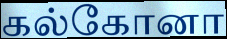
கல்கோனா